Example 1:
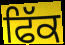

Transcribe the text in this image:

ਫਿੱਕ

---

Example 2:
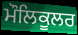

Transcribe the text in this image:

ਮੌਲਿਕੂਲਰ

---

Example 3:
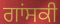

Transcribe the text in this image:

ਗਾਂਸਕੀ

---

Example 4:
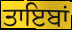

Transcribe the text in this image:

ਤਾਇਬਾਂ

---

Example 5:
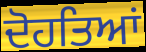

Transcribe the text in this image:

ਦੋਹਤਿਆਂ